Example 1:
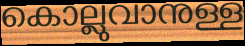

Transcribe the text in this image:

കൊല്ലുവാനുള്ള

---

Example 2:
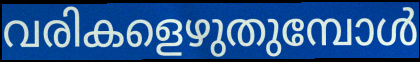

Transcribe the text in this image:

വരികളെഴുതുമ്പോൾ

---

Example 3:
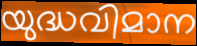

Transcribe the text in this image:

യുദ്ധവിമാന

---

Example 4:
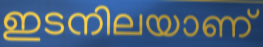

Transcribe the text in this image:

ഇടനിലയാണ്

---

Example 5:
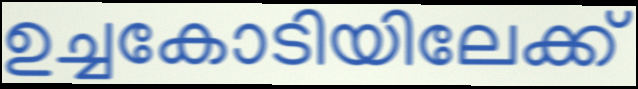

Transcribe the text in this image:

ഉച്ചകോടിയിലേക്ക്